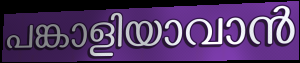
പങ്കാളിയാവാൻ